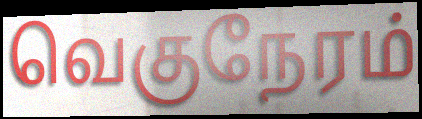
வெகுநேரம்